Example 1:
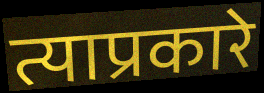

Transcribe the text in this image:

त्याप्रकारे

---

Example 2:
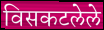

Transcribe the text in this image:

विसकटलेले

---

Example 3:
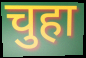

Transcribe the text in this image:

चुहा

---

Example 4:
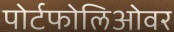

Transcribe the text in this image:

पोर्टफोलिओवर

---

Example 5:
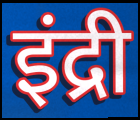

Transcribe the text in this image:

इंद्री